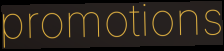
promotions